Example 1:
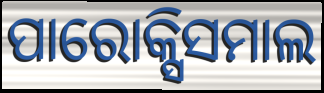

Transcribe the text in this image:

ପାରୋକ୍ସିସମାଲ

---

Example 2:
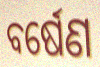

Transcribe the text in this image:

ବର୍ଷେଣ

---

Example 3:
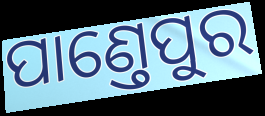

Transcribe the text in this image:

ପାଣ୍ତେପୁର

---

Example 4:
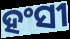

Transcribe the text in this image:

ହଂସୀ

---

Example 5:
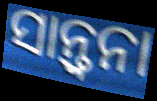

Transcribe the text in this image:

ସାନ୍ତ୍ବନା